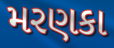
મરણકા